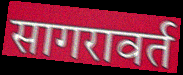
सागरावर्त